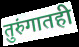
तुरुंगातही